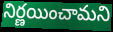
నిర్ణయించామని